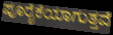
ಪೂರೈಕೆಯಾಗುತ್ತವೆ